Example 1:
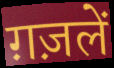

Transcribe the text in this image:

ग़ज़लें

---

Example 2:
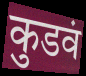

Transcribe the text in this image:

कुडवं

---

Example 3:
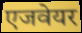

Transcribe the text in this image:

एजवेयर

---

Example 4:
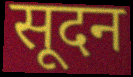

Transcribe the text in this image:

सूदन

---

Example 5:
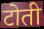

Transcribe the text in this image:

टोती